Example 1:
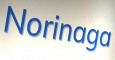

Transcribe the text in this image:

Norinaga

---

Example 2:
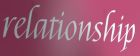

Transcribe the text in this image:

relationship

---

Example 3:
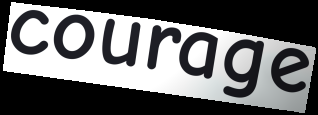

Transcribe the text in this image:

courage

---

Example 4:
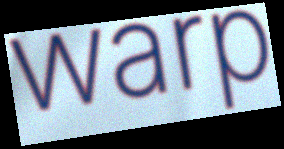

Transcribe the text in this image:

warp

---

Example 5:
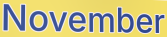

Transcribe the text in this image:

November